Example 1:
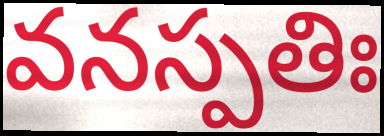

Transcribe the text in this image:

వనస్పతిః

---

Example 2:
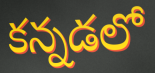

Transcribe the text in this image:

కన్నడలో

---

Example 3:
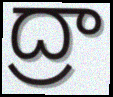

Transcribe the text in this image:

ద్రా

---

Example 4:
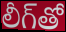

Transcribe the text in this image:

లీగ్‌తో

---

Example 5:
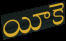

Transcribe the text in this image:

యీకె